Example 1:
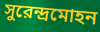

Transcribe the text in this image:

সুরেন্দ্রমোহন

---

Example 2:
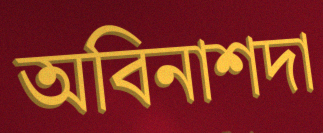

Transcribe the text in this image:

অবিনাশদা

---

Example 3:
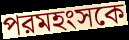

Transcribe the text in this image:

পরমহংসকে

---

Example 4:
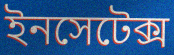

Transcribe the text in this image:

ইনসেটেক্স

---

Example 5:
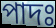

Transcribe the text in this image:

পাদঃ